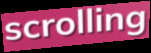
scrolling